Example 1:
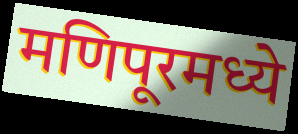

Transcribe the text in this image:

मणिपूरमध्ये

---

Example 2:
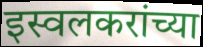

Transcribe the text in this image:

इस्वलकरांच्या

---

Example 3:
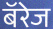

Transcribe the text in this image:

बॅरेज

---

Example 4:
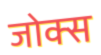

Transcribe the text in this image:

जोक्स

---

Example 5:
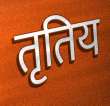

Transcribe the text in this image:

तृतिय